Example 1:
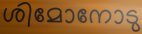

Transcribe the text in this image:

ശിമോനോടു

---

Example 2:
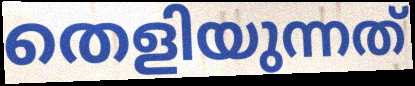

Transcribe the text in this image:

തെളിയുന്നത്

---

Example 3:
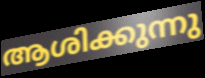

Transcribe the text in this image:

ആശിക്കുന്നു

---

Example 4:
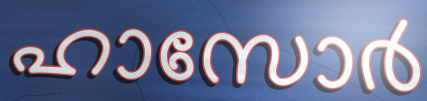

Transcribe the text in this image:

ഹാസോർ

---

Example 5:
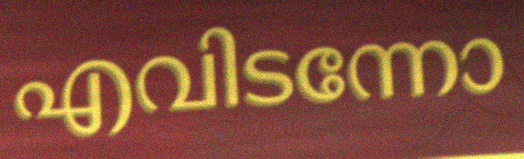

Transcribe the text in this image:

എവിടന്നോ